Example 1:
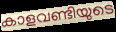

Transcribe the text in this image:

കാളവണ്ടിയുടെ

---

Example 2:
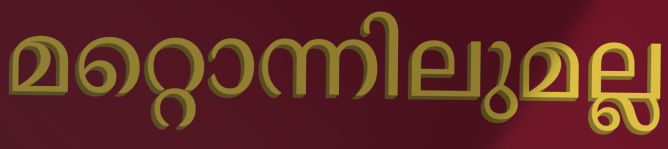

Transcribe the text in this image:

മറ്റൊന്നിലുമല്ല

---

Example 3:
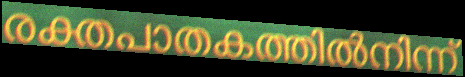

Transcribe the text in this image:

രക്തപാതകത്തിൽനിന്ന്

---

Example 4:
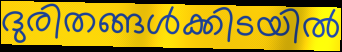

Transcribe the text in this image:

ദുരിതങ്ങൾക്കിടയിൽ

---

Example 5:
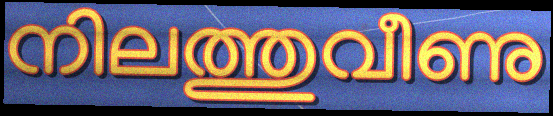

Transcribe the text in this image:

നിലത്തുവീണു